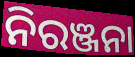
ନିରଞ୍ଜନା